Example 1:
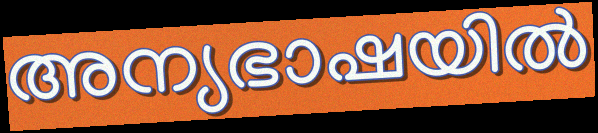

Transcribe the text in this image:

അന്യഭാഷയിൽ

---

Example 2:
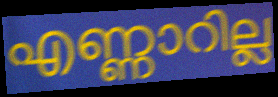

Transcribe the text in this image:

എണ്ണാറില്ല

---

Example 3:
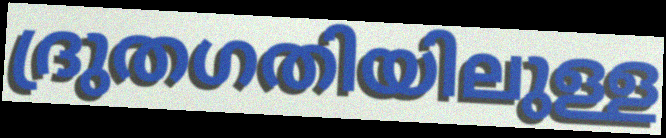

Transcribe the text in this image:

ദ്രുതഗതിയിലുള്ള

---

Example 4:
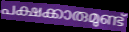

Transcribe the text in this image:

പക്ഷക്കാരുമുണ്ട്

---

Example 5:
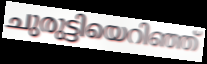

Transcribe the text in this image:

ചുരുട്ടിയെറിഞ്ഞ്